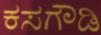
ಕಸಗೌಡಿ